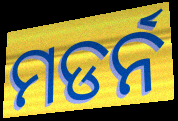
ମଡର୍ନ